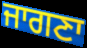
ਜਾਗਣਾ